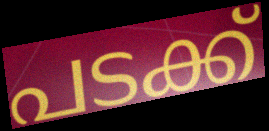
പടക്ക്